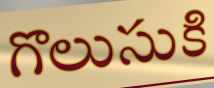
గొలుసుకి